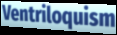
Ventriloquism